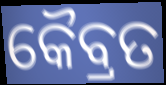
କୈବ୍ରତ